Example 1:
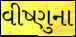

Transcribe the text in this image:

વીષ્ણુના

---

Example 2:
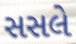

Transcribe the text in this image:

સસલે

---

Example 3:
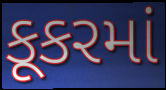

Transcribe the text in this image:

કૂકરમાં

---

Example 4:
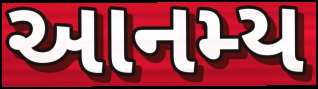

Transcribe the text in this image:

આનમ્ય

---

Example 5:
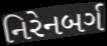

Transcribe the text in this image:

નિરેનબર્ગ